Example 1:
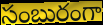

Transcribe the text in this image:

సంబురంగా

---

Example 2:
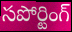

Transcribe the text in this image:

సపోర్టింగ్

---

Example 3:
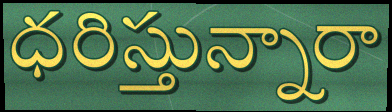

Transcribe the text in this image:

ధరిస్తున్నారా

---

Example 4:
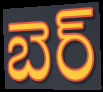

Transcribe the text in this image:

బెర్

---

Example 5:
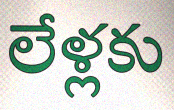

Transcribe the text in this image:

లేళ్లకు